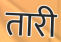
तारी